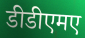
डीडीएमए